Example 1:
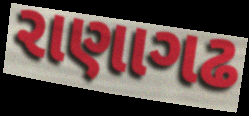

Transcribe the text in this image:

રાણાગઢ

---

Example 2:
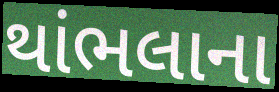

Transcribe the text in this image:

થાંભલાના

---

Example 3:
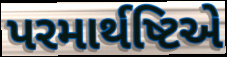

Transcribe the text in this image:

પરમાર્થષ્ટિએ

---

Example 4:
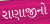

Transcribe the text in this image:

રાણાજીનો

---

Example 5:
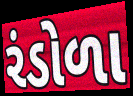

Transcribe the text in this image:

રંડોળા